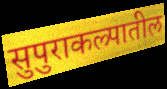
सुपुराकल्पातील